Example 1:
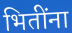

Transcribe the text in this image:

भितींना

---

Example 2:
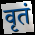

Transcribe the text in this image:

वृतं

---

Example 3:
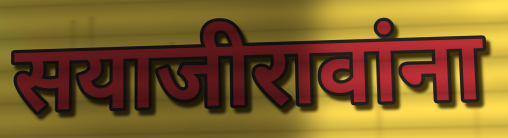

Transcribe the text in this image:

सयाजीरावांना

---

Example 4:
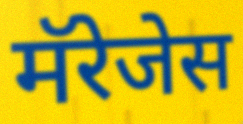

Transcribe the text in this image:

मॅरेजेस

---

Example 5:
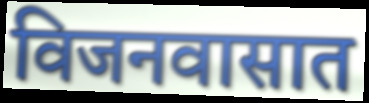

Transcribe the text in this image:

विजनवासात